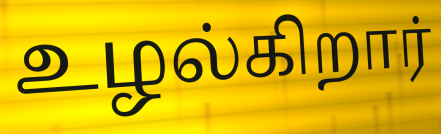
உழல்கிறார்